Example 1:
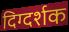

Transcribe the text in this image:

दिग्दर्शक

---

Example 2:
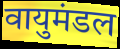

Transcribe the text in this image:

वायुमंडल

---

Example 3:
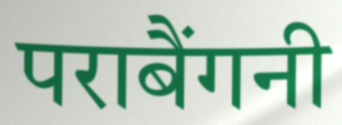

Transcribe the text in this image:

पराबैंगनी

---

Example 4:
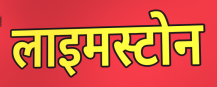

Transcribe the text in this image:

लाइमस्टोन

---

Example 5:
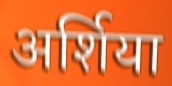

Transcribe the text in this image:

अर्शिया